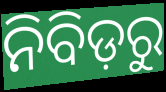
ନିବିଡ଼ରୁ